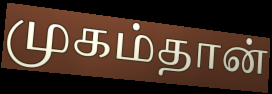
முகம்தான்